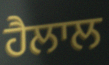
ਹੈਲਾਲ